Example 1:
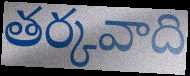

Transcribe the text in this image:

తర్కవాది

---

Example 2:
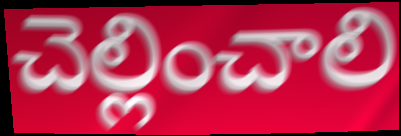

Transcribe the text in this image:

చెల్లించాలి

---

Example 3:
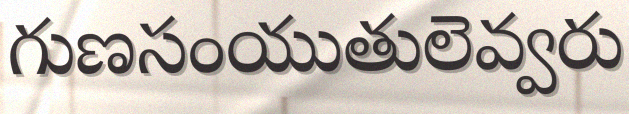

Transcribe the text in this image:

గుణసంయుతులెవ్వరు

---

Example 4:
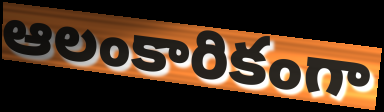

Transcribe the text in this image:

ఆలంకారికంగా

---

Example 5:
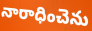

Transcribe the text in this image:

నారాధించెను